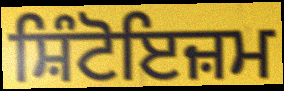
ਸ਼ਿੰਟੋਇਜ਼ਮ